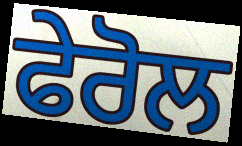
ਫੇਰੋਲ